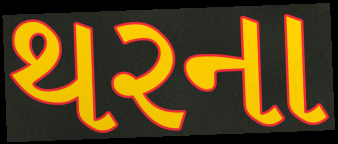
થરના